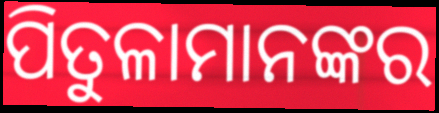
ପିତୁଳାମାନଙ୍କର